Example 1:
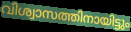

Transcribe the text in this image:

വിശ്വാസത്തിനായിട്ടും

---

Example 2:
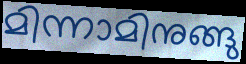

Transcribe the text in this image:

മിന്നാമിനുങ്ങു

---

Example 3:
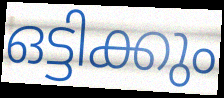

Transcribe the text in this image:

ഒട്ടിക്കും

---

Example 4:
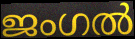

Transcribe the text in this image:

ജംഗൽ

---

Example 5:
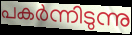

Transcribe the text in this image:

പകർന്നിടുന്നു